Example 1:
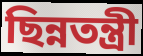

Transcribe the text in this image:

ছিন্নতন্ত্রী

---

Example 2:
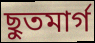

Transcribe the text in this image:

ছুতমার্গ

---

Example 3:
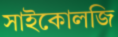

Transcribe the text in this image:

সাইকোলজি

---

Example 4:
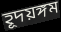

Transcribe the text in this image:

হূদয়ঙ্গম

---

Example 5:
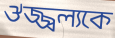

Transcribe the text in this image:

ঔজ্জ্বল্যকে